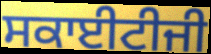
ਸਕਾਈਟੀਜੀ